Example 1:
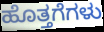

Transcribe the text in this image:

ಹೊತ್ತಗೆಗಳು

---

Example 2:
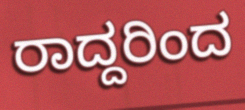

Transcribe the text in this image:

ರಾದ್ದರಿಂದ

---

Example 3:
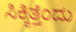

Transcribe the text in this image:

ಸಿಕ್ಕಿತ್ತೆಂದು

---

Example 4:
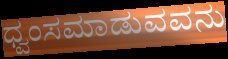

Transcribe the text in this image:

ಧ್ವಂಸಮಾಡುವವನು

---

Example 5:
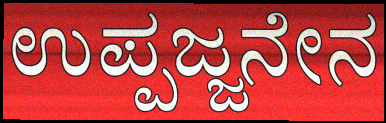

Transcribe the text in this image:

ಉಪ್ಪಜ್ಜನೇನ